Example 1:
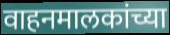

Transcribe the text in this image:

वाहनमालकांच्या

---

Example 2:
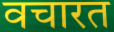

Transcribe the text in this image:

वचारत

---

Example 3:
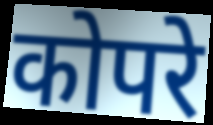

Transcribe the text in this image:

कोपरे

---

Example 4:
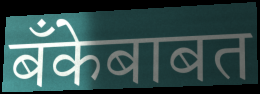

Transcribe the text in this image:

बँकेबाबत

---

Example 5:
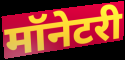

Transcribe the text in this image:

मॉनेटरी